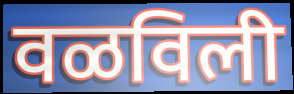
वळविली